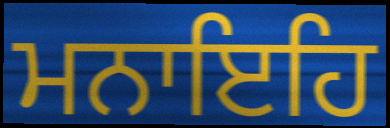
ਮਨਾਇਹਿ